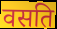
वसति